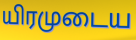
யிரமுடைய